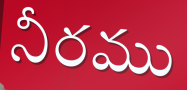
నీరము